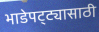
भाडेपट्ट्यासाठी